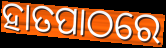
ହାତପାଠରେ